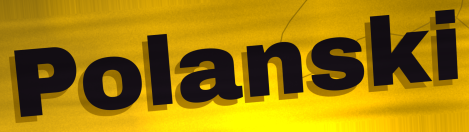
Polanski